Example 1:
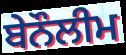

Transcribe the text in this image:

ਬੇਨੌਲੀਮ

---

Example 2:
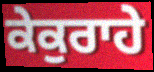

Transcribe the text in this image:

ਕੇਕੁਰਾਹੇ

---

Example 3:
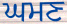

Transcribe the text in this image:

ਘਮਣ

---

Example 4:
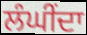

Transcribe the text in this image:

ਲੰਘੀਂਦਾ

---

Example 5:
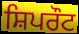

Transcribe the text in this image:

ਸ਼ਿਪਰੌਟ